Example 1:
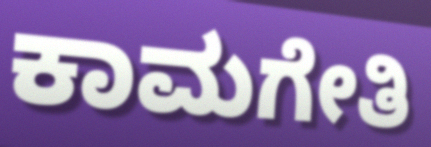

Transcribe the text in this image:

ಕಾಮಗೇತಿ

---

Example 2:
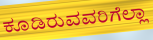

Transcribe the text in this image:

ಕೂಡಿರುವವರಿಗೆಲ್ಲಾ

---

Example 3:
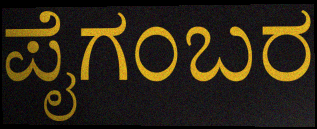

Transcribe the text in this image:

ಪೈಗಂಬರ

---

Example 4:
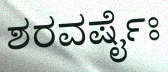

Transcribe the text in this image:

ಶರವರ್ಷೈಃ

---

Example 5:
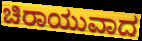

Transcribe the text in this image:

ಚಿರಾಯುವಾದ